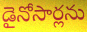
డైనోసార్లను